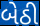
બેઠી